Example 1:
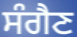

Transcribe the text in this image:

ਸੰਗੈਣ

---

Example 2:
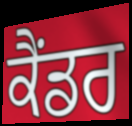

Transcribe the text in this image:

ਕੈਂਡਰ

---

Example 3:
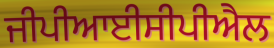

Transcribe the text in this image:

ਜੀਪੀਆਈਸੀਪੀਐਲ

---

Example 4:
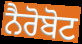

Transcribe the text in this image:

ਨੈਰੋਬੋਟ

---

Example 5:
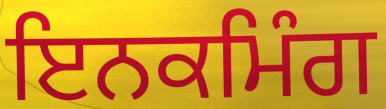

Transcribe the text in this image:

ਇਨਕਮਿੰਗ